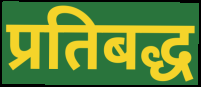
प्रतिबद्ध